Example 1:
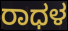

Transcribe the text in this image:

ರಾಧಳ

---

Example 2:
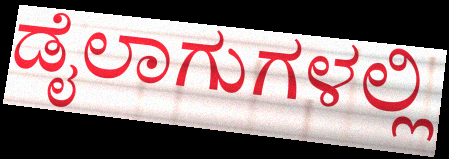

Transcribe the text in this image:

ಡೈಲಾಗುಗಳಲ್ಲಿ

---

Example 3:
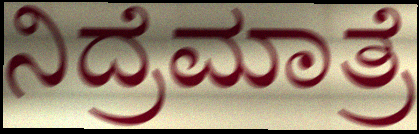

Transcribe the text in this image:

ನಿದ್ರೆಮಾತ್ರೆ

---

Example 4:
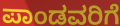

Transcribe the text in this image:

ಪಾಂಡವರಿಗೆ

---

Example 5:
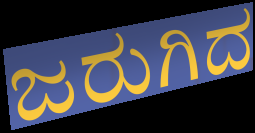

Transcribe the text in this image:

ಜರುಗಿದ